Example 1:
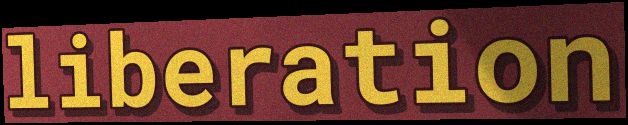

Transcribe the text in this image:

liberation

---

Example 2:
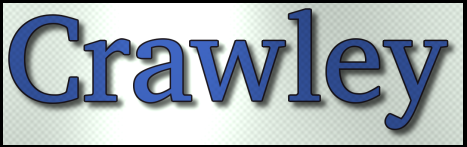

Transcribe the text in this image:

Crawley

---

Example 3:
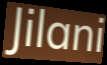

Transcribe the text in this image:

Jilani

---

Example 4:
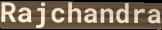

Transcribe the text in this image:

Rajchandra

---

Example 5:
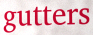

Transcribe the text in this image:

gutters